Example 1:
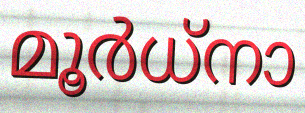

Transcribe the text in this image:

മൂർധ്നാ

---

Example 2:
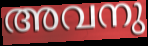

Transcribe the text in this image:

അവനു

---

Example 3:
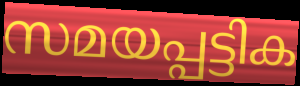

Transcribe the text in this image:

സമയപ്പട്ടിക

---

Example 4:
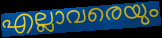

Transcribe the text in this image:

എല്ലാവരെയും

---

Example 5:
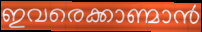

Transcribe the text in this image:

ഇവരെക്കാണ്മാൻ